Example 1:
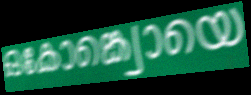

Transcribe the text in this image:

ഒകോങ്ക്വൊയെ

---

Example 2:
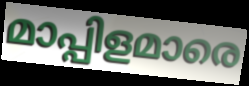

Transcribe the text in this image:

മാപ്പിളമാരെ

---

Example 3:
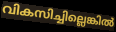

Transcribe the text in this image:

വികസിച്ചില്ലെങ്കിൽ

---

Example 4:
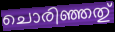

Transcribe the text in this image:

ചൊരിഞ്ഞതു്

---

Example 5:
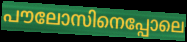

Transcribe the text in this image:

പൗലോസിനെപ്പോലെ